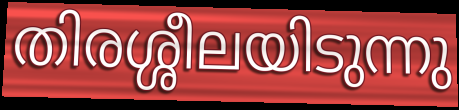
തിരശ്ശീലയിടുന്നു